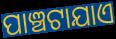
ପାଞ୍ଚଟାଯାଏ